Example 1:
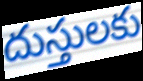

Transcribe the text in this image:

దుస్తులకు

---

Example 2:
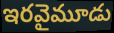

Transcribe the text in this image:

ఇరవైమూడు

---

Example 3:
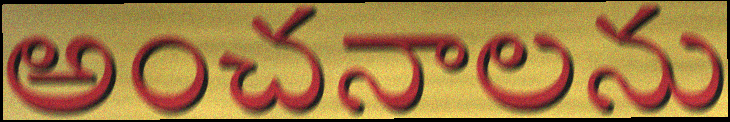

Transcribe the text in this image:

అంచనాలను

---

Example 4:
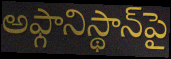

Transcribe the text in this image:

అఫ్గానిస్థాన్‌పై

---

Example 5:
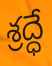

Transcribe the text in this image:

శ్రద్ధే